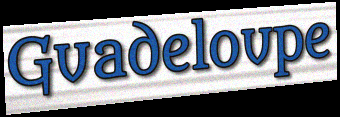
Guadeloupe